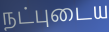
நட்புடைய